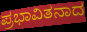
ಪ್ರಭಾವಿತನಾದ